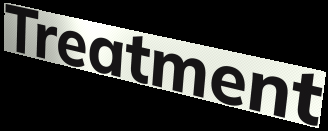
Treatment